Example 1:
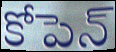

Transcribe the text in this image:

కోపెన్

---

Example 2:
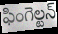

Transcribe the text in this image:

ఫింగెల్టన్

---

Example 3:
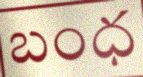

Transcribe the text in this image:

బంధ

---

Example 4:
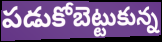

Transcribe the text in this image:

పడుకోబెట్టుకున్న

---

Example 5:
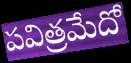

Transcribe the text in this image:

పవిత్రమేదో